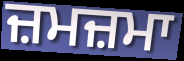
ਜ਼ਮਜ਼ਮਾ